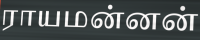
ராயமன்னன்